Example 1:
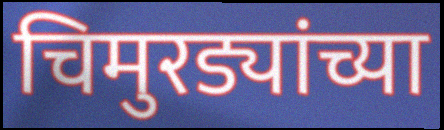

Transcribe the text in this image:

चिमुरड्यांच्या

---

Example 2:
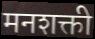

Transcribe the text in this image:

मनशक्ती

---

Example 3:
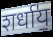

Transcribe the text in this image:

शर्धा॑य॒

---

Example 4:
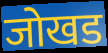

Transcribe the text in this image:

जोखड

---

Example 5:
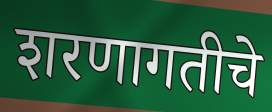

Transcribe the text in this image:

शरणागतीचे